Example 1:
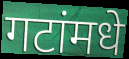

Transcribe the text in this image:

गटांमधे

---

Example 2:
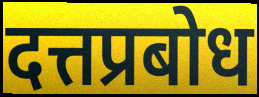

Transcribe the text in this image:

दत्तप्रबोध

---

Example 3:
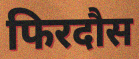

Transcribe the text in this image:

फिरदौस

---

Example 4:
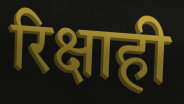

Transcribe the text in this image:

रिक्षाही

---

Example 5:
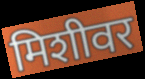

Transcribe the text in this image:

मिशीवर